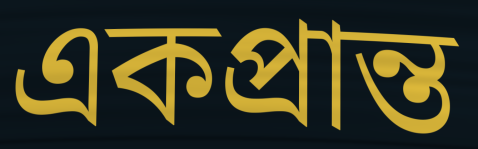
একপ্রান্ত